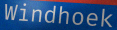
Windhoek